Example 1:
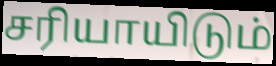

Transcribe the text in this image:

சரியாயிடும்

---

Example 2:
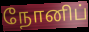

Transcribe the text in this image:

நோனிப்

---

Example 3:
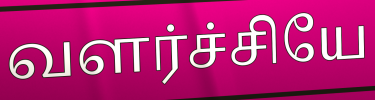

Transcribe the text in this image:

வளர்ச்சியே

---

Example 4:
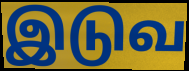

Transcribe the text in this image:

இடுவ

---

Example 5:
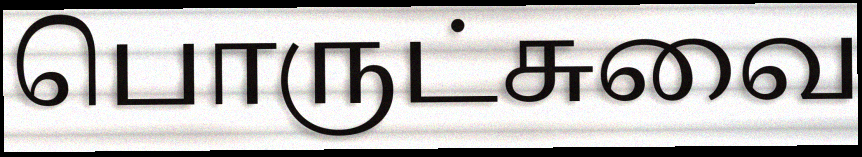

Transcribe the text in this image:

பொருட்சுவை